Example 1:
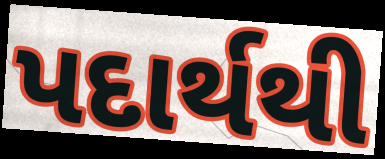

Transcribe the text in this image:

પદાર્થથી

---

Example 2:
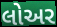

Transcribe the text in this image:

લોઅર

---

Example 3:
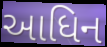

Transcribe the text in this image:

આધિન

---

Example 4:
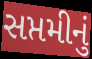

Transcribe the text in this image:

સપ્તમીનું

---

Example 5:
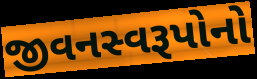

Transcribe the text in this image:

જીવનસ્વરૂપોનો